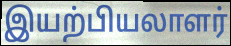
இயற்பியலாளர்